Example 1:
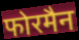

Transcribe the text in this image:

फोरमैन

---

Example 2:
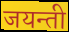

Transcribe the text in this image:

जयन्ती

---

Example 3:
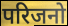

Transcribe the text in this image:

परिजनो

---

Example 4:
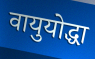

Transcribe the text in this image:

वायुयोद्धा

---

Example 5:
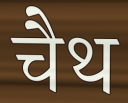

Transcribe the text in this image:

चैथ